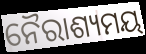
ନୈରାଶ୍ୟମୟ